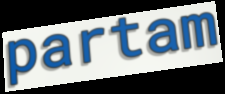
partam